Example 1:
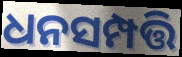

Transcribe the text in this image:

ଧନସମ୍ପତ୍ତି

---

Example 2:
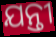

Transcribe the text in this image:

ଯନ୍ତୀ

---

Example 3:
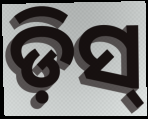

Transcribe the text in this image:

ଡ଼ିସ୍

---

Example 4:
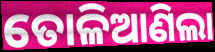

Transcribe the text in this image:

ତୋଳିଆଣିଲା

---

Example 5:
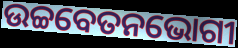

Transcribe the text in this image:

ଉଚ୍ଚବେତନଭୋଗୀ